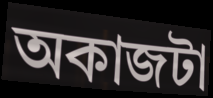
অকাজটা